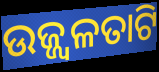
ଉଜ୍ଜ୍ୱଳତାଟି